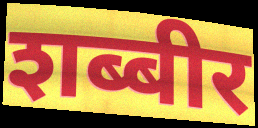
शब्बीर